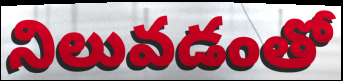
నిలువడంతో